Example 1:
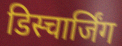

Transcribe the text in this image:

डिस्चार्जिंग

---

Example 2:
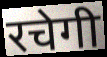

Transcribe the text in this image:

रचेगी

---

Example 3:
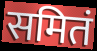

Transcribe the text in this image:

समितं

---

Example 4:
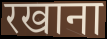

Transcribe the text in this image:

रखाना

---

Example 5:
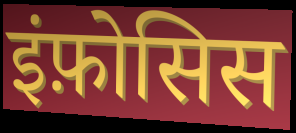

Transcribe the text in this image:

इंफ़ोसिस